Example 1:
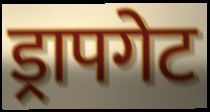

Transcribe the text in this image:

ड्रापगेट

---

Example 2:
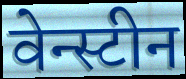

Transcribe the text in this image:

वेन्स्टीन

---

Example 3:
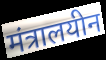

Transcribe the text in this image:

मंत्रालयीन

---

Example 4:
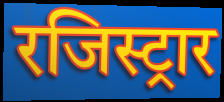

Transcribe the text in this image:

रजिस्ट्रार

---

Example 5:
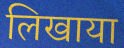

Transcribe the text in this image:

लिखाया